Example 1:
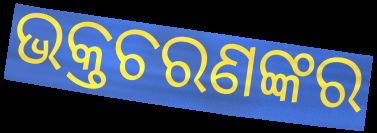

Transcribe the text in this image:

ଭକ୍ତଚରଣଙ୍କର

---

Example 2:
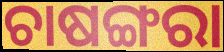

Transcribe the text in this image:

ଚାଷଙ୍ଗରା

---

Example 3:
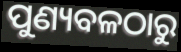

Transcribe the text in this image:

ପୁଣ୍ୟବଳଠାରୁ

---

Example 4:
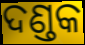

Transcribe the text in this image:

ଦଣ୍ଡକ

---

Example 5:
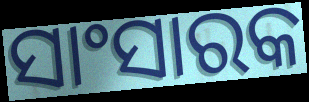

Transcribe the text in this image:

ସାଂସାରକ